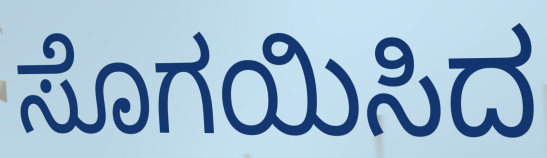
ಸೊಗಯಿಸಿದ